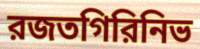
রজতগিরিনিভ